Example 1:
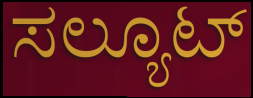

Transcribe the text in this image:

ಸಲ್ಯೂಟ್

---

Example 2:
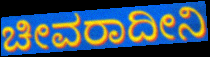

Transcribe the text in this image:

ಚೀವರಾದೀನಿ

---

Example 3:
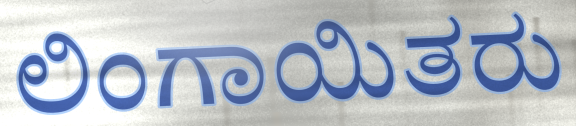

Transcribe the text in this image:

ಲಿಂಗಾಯಿತರು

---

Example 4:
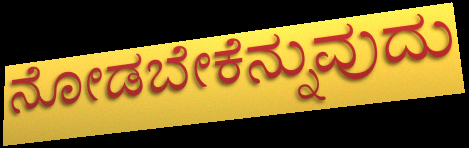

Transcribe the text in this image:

ನೋಡಬೇಕೆನ್ನುವುದು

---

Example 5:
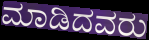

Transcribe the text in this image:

ಮಾಡಿದವರು